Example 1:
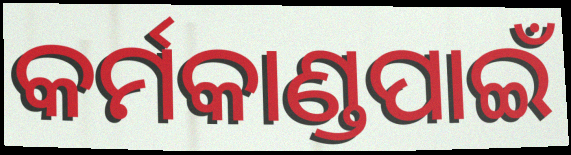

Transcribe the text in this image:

କର୍ମକାଣ୍ଡପାଇଁ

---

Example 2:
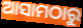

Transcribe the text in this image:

ଆସାମଠାରୁ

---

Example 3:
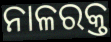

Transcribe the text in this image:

ନାଳରକ୍ତ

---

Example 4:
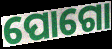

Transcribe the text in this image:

ପୋଗୋ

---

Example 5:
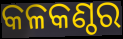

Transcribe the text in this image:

କଳକଣ୍ଠର